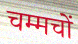
चम्मचों